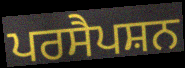
ਪਰਸੈਪਸ਼ਨ